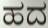
ಹದ